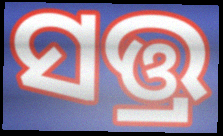
ସତ୍ତ୍ର